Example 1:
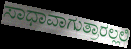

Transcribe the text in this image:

ಸಾಧಾವಾಗುತ್ರಾರಲ್ಲಲಿ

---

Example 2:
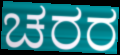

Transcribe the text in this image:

ಚರರ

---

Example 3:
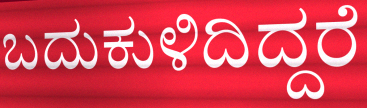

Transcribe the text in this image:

ಬದುಕುಳಿದಿದ್ದರೆ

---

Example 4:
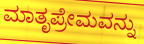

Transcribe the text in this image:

ಮಾತೃಪ್ರೇಮವನ್ನು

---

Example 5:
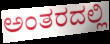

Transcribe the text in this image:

ಅಂತರದಲ್ಲಿ